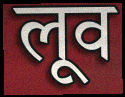
लूव